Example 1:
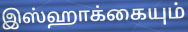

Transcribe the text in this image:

இஸ்ஹாக்கையும்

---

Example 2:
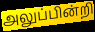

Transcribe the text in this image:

அலுப்பின்றி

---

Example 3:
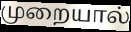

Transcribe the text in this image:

முறையால்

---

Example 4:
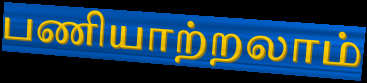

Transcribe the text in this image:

பணியாற்றலாம்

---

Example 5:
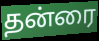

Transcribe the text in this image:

தன்ரை